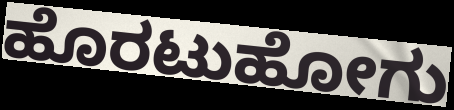
ಹೊರಟುಹೋಗು